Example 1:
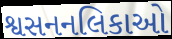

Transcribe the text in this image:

શ્વસનનલિકાઓ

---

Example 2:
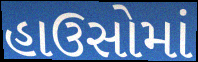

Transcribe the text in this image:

હાઉસોમાં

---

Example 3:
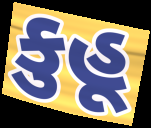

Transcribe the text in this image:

કુહૂ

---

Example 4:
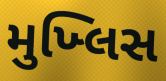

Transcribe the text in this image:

મુખ્લિસ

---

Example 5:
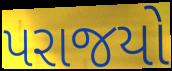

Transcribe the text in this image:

પરાજયો